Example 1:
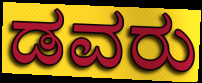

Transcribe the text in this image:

ಡವರು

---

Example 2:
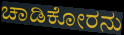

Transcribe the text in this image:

ಚಾಡಿಕೋರನು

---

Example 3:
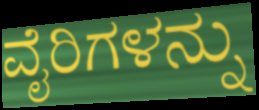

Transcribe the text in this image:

ವೈರಿಗಳನ್ನು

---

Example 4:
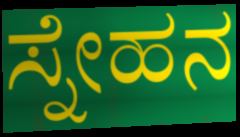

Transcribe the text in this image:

ಸ್ನೇಹನ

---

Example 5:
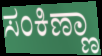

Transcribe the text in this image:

ಸಂಕಿಣ್ಣಾ